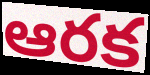
ఆరక